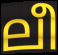
ലീ